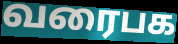
வரைபக